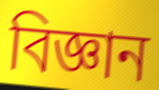
বিজ্ঞান